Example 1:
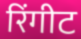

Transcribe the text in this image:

रिंगीट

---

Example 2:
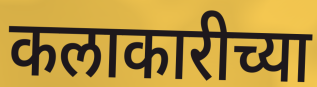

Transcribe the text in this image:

कलाकारीच्या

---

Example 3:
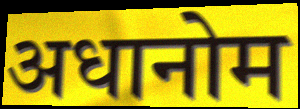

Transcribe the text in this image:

अधानोम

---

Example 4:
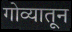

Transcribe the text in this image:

गोव्यातून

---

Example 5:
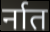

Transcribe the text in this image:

र्नात